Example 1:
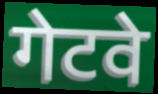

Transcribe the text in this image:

गेटवे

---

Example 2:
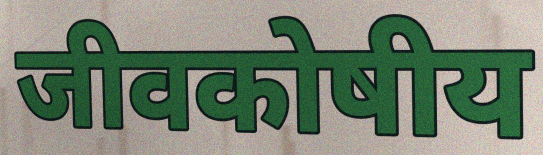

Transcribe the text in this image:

जीवकोषीय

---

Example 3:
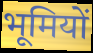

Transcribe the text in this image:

भूमियों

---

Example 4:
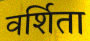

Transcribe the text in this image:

वर्शिता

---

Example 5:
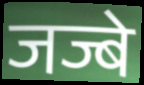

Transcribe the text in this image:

जज्बे